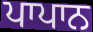
ਪਾਪਾਨ